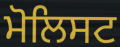
ਮੋਲਿਸਟ